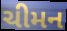
ચીમન